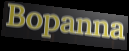
Bopanna